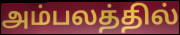
அம்பலத்தில்